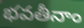
భవతీనాం